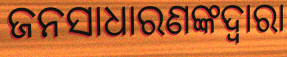
ଜନସାଧାରଣଙ୍କଦ୍ବାରା